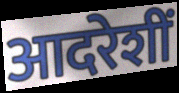
आदरेशीं